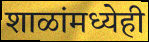
शाळांमध्येही